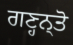
ਗਣ੍ਹਨ੍ਤੋ